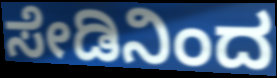
ಸೇಡಿನಿಂದ